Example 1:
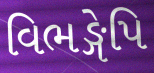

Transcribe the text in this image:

વિભઙ્ગેપિ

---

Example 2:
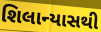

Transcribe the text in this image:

શિલાન્યાસથી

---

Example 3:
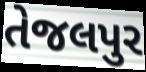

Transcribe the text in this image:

તેજલપુર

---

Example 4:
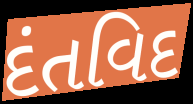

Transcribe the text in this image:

દંતવિદ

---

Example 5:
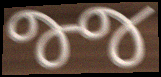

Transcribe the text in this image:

જ્જ